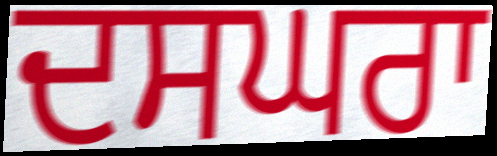
ਦਸਘਰਾ